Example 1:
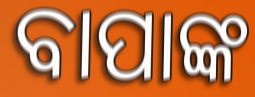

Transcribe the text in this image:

ବାପାଙ୍କ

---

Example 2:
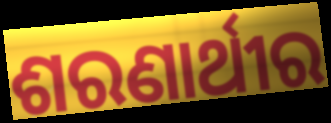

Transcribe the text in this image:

ଶରଣାର୍ଥୀର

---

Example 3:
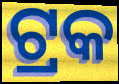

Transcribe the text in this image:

ଟ୍ରକ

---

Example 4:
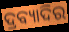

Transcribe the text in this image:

ଦ୍ରବ୍ୟାଦିର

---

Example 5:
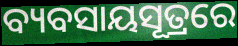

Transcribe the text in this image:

ବ୍ୟବସାୟସୂତ୍ରରେ